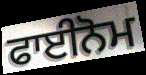
ਫਾਈਨੋਮ